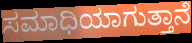
ಸಮಾಧಿಯಾಗುತ್ತಾನೆ